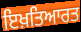
ਇਖ਼ਤਿਆਰਤ